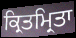
ਕ੍ਰਿਤਮ੍ਰਿਤਾ